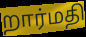
றார்மதி